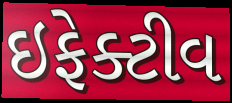
ઇફેક્ટીવ